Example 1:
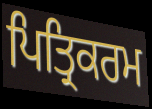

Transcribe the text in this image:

ਪਿਤ੍ਰਿਕਰਮ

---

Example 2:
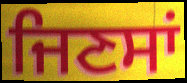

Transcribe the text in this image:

ਜਿਣਸਾਂ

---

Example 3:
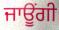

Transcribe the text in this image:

ਜਾਊਂਗੀ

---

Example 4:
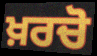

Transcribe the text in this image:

ਖ਼ਰਚੋ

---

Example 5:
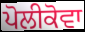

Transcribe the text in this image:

ਪੋਲੀਕੋਵਾ